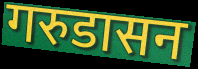
गरुडासन